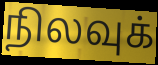
நிலவுக்